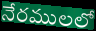
నేరములలో